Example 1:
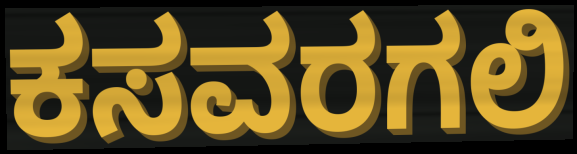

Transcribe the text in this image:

ಕಸವರಗಲಿ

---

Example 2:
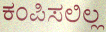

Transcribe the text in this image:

ಕಂಪಿಸಲಿಲ್ಲ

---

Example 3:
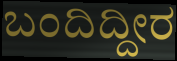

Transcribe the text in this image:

ಬಂದಿದ್ದೀರ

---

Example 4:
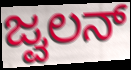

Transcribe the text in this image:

ಜ್ವಲನ್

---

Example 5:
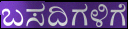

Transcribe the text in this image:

ಬಸದಿಗಳಿಗೆ